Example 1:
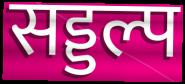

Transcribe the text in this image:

सड्डल्प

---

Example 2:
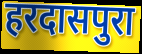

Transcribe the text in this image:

हरदासपुरा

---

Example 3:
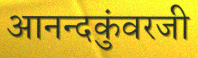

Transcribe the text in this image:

आनन्दकुंवरजी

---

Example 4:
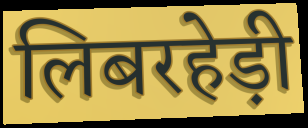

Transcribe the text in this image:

लिबरहेड़ी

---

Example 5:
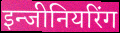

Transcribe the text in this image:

इन्जीनियरिंग